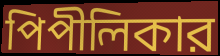
পিপীলিকার